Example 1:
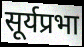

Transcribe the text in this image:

सूर्यप्रभा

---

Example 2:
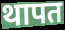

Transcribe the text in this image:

थापत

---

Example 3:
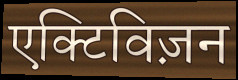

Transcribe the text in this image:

एक्टिविज़न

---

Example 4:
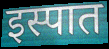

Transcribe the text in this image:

इस्पात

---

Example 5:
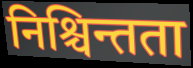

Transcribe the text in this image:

निश्चिन्तता